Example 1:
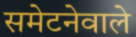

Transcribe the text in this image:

समेटनेवाले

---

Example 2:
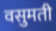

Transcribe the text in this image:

वसुमती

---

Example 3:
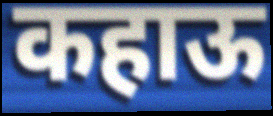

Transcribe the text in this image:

कहाऊ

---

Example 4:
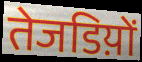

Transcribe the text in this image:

तेजडिय़ों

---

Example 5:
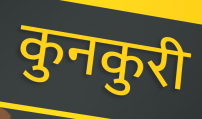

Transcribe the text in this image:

कुनकुरी